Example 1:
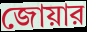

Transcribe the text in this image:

জোয়ার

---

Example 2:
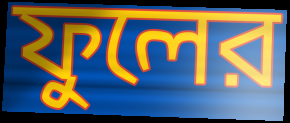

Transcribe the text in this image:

ফুলের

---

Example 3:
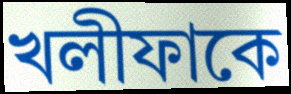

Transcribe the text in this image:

খলীফাকে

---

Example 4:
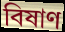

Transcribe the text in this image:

বিষাণ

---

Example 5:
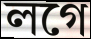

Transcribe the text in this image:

লগে